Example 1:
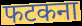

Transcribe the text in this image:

फटकना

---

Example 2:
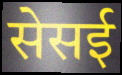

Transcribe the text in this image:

सेसई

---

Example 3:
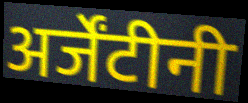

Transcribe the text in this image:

अर्जेंटीनी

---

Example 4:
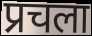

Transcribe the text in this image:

प्रचला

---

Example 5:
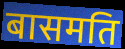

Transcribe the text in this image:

बासमति